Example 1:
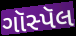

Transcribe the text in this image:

ગૉસ્પૅલ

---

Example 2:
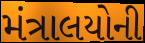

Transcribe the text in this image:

મંત્રાલયોની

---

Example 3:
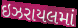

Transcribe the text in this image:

ઇઝરાયલમાં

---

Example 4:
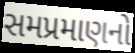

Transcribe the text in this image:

સમપ્રમાણનો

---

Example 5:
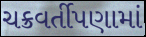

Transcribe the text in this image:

ચક્રવર્તીપણામાં